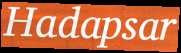
Hadapsar